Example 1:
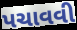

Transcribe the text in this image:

પચાવવી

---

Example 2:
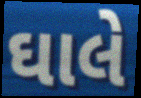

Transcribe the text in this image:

ઘાલે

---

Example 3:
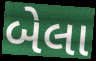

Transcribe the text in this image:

બેલા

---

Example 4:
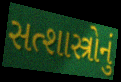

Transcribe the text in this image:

સત્શાસ્ત્રોનું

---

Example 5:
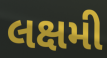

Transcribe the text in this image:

લક્ષમી